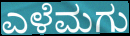
ಎಳೆಮಗು